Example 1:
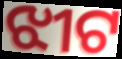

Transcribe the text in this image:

ଝୀଟ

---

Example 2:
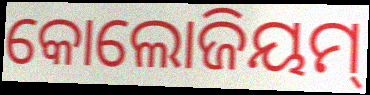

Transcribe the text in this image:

କୋଲୋଜିୟମ୍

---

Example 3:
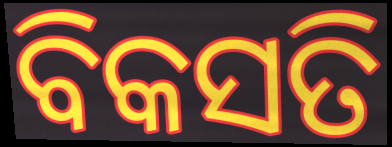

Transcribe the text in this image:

ବିକସତି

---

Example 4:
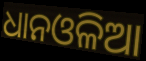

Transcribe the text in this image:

ଧାନଓଳିଆ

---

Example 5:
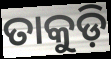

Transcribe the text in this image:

ତାକୁଡ଼ି